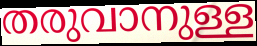
തരുവാനുള്ള